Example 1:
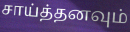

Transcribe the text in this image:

சாய்த்தனவும்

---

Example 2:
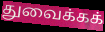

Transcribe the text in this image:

துவைக்கக்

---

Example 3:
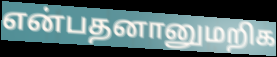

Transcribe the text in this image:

என்பதனானுமறிக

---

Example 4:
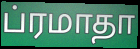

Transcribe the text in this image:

ப்ரமாதா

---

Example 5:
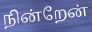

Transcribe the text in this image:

நின்றேன்